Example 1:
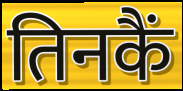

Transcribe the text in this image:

तिनकैं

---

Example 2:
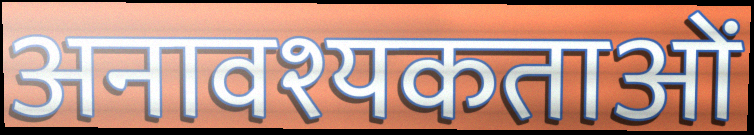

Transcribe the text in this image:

अनावश्यकताओं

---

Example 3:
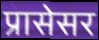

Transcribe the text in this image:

प्रासेसर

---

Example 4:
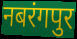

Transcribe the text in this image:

नबरंगपुर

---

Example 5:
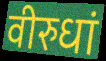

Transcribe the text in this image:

वीरुधां